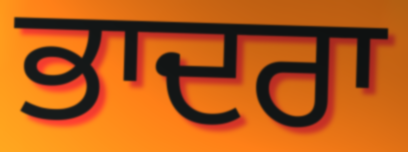
ਭਾਦਰਾ